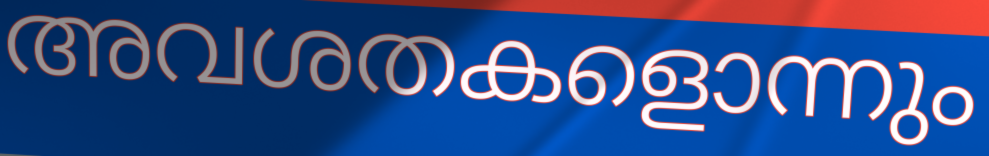
അവശതകളൊന്നും